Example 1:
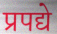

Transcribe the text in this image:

प्रपद्ये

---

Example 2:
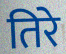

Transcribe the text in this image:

तिरे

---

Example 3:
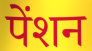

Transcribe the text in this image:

पेंशन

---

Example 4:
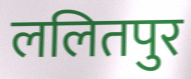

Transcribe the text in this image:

ललितपुर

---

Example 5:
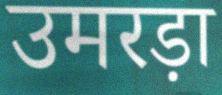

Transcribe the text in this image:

उमरड़ा